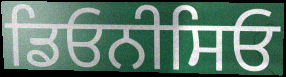
ਡਿਓਨੀਸਿਓ